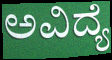
ಅವಿದ್ಯೆ